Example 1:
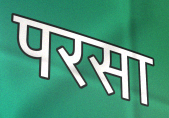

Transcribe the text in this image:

परसा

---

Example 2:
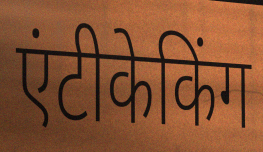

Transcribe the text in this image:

एंटीकेकिंग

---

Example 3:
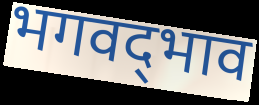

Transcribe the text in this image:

भगवद्भाव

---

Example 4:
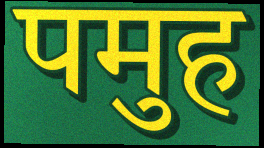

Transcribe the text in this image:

पमुह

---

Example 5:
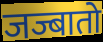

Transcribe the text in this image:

जज्बातो